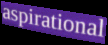
aspirational